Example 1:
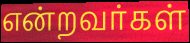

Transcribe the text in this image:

என்றவர்கள்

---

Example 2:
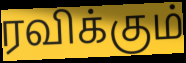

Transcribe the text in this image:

ரவிக்கும்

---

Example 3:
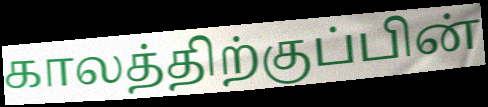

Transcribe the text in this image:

காலத்திற்குப்பின்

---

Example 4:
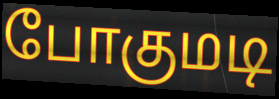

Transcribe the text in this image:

போகுமடி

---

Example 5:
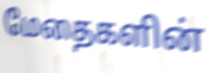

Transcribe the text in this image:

மேதைகளின்